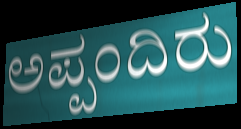
ಅಪ್ಪಂದಿರು